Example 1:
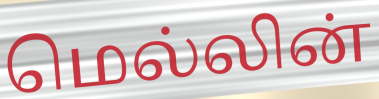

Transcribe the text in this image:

மெல்லின்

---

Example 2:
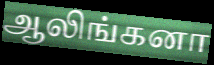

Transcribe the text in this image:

ஆலிங்கனா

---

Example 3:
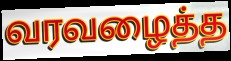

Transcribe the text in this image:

வரவழைத்த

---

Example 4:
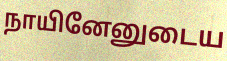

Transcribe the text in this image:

நாயினேனுடைய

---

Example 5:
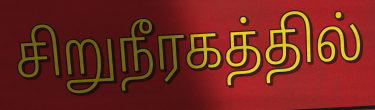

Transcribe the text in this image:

சிறுநீரகத்தில்